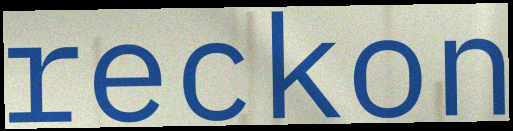
reckon